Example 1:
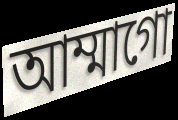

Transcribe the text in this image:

আম্মাগো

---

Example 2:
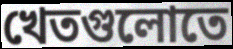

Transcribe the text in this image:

খেতগুলোতে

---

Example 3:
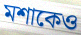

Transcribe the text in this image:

মশাকেও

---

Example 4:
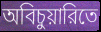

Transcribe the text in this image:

অবিচুয়ারিতে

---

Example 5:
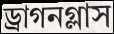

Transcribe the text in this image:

ড্রাগনগ্লাস